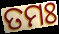
ତମଃ